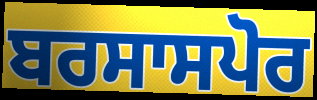
ਬਰਸਾਸਪੋਰ